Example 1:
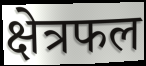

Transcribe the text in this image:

क्षेत्रफल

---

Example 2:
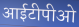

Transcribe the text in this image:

आईटीपीओ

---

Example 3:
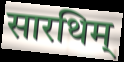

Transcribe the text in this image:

सारथिम्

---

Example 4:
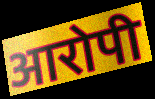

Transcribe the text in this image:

आरोपी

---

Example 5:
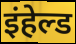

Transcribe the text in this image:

इंहेल्ड